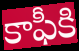
కాఫీకి